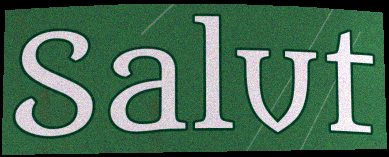
Salut